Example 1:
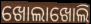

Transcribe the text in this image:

ଖୋଲାଖୋଲି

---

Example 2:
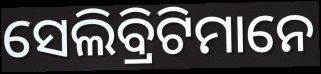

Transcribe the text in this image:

ସେଲିବ୍ରିଟିମାନେ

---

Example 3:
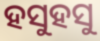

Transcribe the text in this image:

ହସୁହସୁ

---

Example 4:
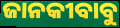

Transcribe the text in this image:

ଜାନକୀବାବୁ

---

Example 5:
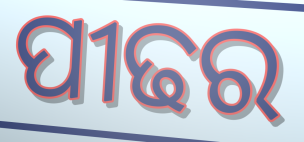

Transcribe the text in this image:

ପୀଢର